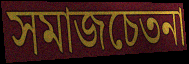
সমাজচেতনা